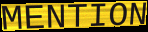
MENTION